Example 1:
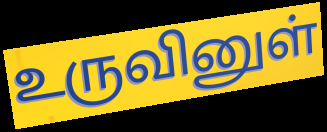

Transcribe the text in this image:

உருவினுள்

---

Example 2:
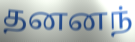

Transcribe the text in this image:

தனனந்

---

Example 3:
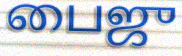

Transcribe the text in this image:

பைஜு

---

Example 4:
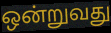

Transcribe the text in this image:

ஒன்றுவது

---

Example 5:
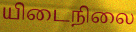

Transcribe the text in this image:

யிடைநிலை